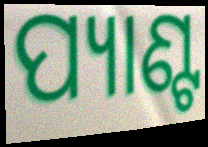
ପ୍ୟାଣ୍ଟ